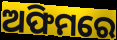
ଅଫିମରେ